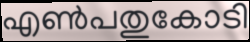
എൺപതുകോടി